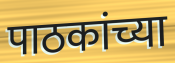
पाठकांच्या